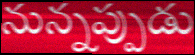
నున్నప్పుడు